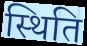
स्थिति